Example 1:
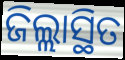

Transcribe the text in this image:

ଜିଲ୍ଲାସ୍ଥିତ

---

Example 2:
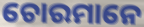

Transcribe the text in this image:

ଚୋରମାନେ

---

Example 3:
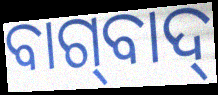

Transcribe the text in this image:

ବାଗ୍‌ବାଦ୍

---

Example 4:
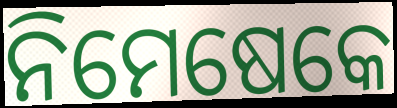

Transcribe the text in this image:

ନିମେଷେକେ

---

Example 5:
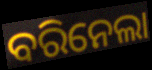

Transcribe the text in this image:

ବରିନେଲା